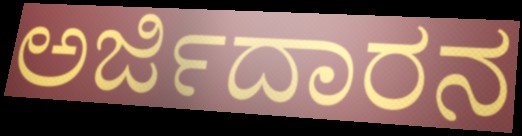
ಅರ್ಜಿದಾರನ